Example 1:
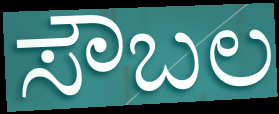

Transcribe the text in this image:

ಸೌಬಲ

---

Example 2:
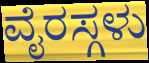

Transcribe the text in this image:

ವೈರಸ್ಗಳು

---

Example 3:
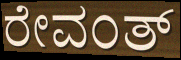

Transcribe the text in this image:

ರೇವಂತ್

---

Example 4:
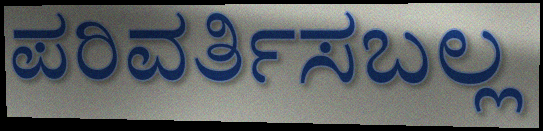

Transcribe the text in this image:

ಪರಿವರ್ತಿಸಬಲ್ಲ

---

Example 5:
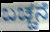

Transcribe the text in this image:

ಬಚ್ಚನೆ